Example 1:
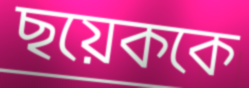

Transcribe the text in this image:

ছয়েককে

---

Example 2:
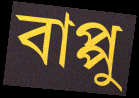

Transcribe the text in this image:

বাপ্পু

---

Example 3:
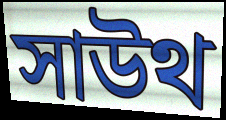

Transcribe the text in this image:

সাউথ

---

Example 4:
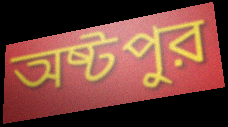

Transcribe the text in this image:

অষ্টপুর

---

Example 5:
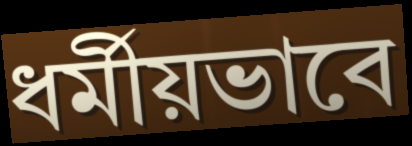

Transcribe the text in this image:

ধর্মীয়ভাবে